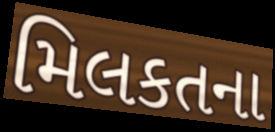
મિલકતના